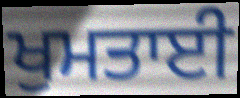
ਖੁਮਤਾਈ